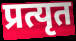
प्रत्यृत